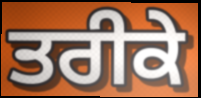
ਤਰੀਕੇ